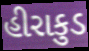
હીરાકુડ